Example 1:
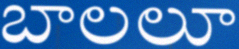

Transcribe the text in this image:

బాలలూ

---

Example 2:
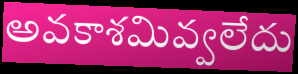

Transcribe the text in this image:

అవకాశమివ్వలేదు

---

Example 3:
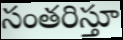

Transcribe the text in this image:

సంతరిస్తూ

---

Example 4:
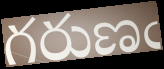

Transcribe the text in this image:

గరుణఁ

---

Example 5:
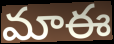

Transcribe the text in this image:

మాఈ